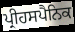
ਪ੍ਰੀਹਸਪੈਨਿਕ